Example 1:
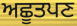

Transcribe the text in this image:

ਅਛੂਤਪਣ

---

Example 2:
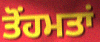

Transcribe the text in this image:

ਤੋਂਹਮਤਾਂ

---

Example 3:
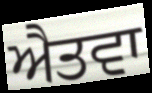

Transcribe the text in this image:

ਐਤਵਾ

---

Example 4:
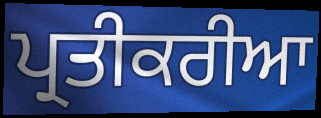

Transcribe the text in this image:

ਪ੍ਰਤੀਕਰੀਆ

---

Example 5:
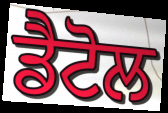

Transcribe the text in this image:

ਡੈਟੋਲ